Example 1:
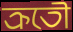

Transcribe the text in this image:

ক্রতৌ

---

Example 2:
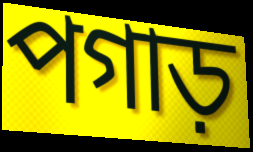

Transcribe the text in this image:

পগাড়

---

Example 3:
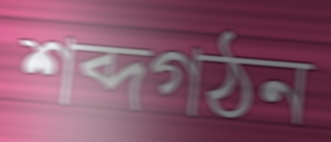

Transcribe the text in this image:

শব্দগঠন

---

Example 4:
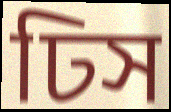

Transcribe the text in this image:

ঢিস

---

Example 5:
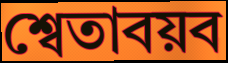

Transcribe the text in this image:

শ্বেতাবয়ব